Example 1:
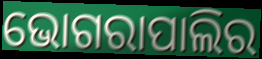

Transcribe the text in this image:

ଭୋଗରାପାଲିର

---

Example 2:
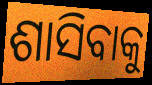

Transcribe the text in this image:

ଶାସିବାକୁ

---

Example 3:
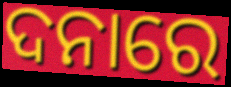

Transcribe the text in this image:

ଦନାରେ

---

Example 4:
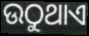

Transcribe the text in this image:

ଉଠୁଥାଏ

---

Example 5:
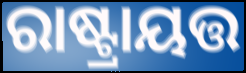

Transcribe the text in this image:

ରାଷ୍ଟ୍ରାୟତ୍ତ